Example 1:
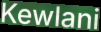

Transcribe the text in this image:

Kewlani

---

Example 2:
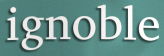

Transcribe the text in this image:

ignoble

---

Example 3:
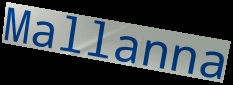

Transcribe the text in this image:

Mallanna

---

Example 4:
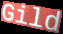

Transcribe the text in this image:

Gild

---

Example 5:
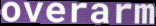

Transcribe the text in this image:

overarm